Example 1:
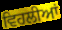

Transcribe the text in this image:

ਵਿਹਲੀਆਂ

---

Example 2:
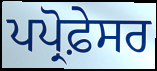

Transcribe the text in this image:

ਪਪ੍ਰੋਫ਼ੇਸਰ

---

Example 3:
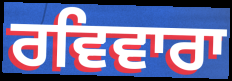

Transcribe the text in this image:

ਰਵਿਵਾਰਾ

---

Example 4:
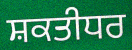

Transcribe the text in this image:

ਸ਼ਕਤੀਧਰ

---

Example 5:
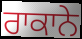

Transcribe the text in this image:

ਰਾਕਾਨੇ